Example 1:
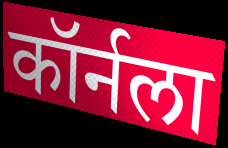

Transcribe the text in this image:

कॉर्नला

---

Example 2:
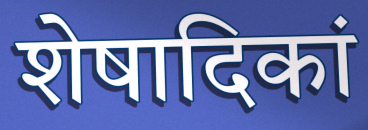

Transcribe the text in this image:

शेषादिकां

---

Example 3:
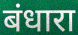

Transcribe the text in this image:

बंधारा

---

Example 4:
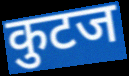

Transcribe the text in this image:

कुटज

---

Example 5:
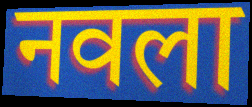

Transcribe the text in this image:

नवला